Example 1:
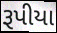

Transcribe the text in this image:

રૂપીયા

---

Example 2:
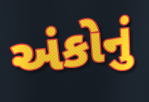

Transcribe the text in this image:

અંકોનું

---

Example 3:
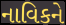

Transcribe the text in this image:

નાવિકને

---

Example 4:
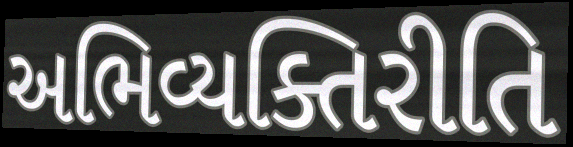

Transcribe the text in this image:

અભિવ્યક્તિરીતિ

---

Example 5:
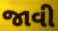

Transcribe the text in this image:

જાવી